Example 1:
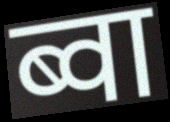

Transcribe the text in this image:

ब्वा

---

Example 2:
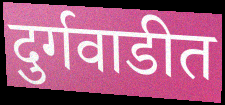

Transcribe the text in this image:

दुर्गवाडीत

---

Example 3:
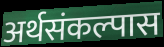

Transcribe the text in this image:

अर्थसंकल्पास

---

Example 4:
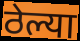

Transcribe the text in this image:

ठेल्या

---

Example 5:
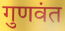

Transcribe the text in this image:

गुणवंत